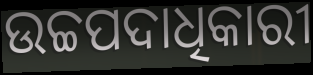
ଉଚ୍ଚପଦାଧିକାରୀ